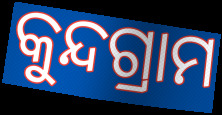
କୁନ୍ଦଗ୍ରାମ